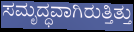
ಸಮೃದ್ಧವಾಗಿರುತ್ತಿತ್ತು